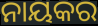
ନାୟକର